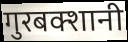
गुरबक्शानी